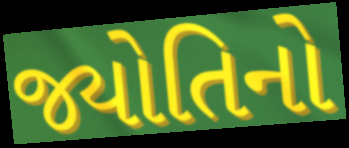
જ્યોતિનો